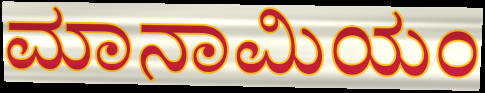
ಮಾನಾಮಿಯಂ